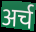
अर्च